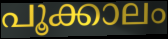
പൂക്കാലം